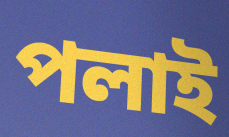
পলাই